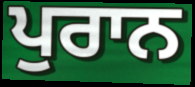
ਪੁਰਾਨ